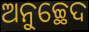
ଅନୁଚ୍ଛେଦ